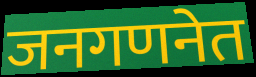
जनगणनेत